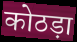
कोठड़ा